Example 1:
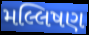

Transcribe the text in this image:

મલ્લિષણ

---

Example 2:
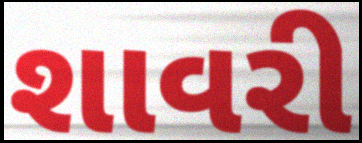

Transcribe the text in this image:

શાવરી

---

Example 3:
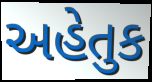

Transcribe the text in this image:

અહેતુક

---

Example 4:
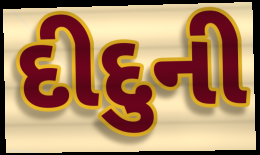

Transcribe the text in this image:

દીદુની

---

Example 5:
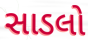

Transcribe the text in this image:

સાડલો